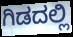
ಗಿಡದಲ್ಲಿ